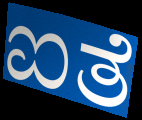
ಐತೆ